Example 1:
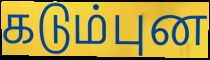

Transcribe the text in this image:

கடும்புன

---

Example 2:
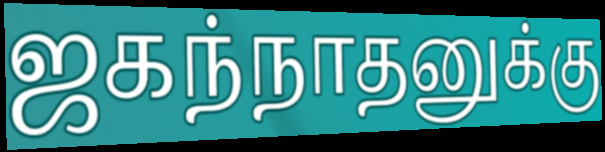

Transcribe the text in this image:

ஜகந்நாதனுக்கு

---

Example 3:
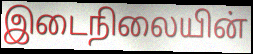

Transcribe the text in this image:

இடைநிலையின்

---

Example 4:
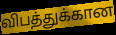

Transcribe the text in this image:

விபத்துக்கான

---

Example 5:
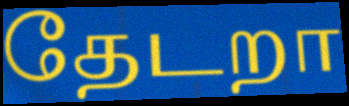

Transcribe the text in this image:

தேடறா